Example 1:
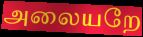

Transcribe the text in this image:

அலையறே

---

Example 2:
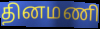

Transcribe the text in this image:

தினமணி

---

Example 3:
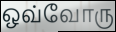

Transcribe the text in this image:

ஒவ்வோரு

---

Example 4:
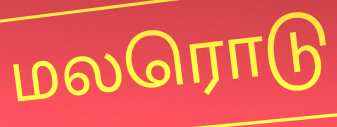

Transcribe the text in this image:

மலரொடு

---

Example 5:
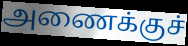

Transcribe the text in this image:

அணைக்குச்